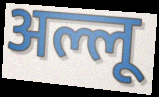
अल्लू